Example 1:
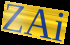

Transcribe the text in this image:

ZAi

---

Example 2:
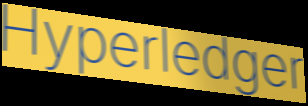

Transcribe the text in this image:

Hyperledger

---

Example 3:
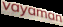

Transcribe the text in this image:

vayaman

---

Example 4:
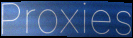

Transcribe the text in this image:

Proxies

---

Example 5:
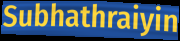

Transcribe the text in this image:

Subhathraiyin